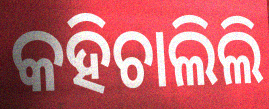
କହିଚାଲିଲି